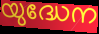
യുദ്ധേന